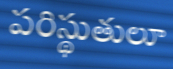
పరిస్థుతులూ